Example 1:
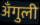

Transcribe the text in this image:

अँगुली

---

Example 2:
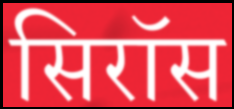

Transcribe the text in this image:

सिरॉस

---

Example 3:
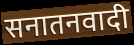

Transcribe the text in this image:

सनातनवादी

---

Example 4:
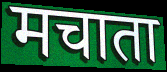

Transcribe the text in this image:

मचाता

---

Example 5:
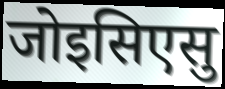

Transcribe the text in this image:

जोइसिएसु